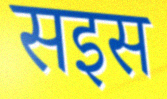
सइस